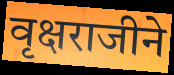
वृक्षराजीने